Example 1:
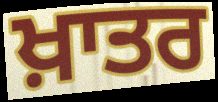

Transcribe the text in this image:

ਖ਼ਾਤਰ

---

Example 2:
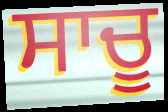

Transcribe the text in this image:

ਸਾਚੂ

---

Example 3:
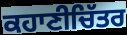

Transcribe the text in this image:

ਕਹਾਣੀਚਿੱਤਰ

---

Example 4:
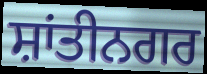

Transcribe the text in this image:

ਸ਼ਾਂਤੀਨਗਰ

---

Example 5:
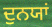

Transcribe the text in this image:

ਦੁਨਯਾਂ